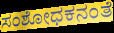
ಸಂಶೋಧಕನಂತೆ